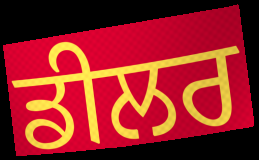
ਡੀਲਰ